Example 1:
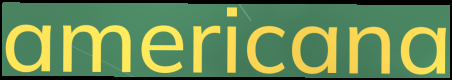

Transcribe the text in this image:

americana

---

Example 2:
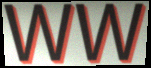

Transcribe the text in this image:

WW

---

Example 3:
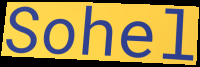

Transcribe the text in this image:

Sohel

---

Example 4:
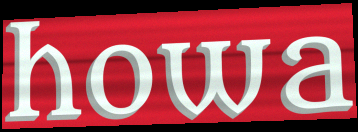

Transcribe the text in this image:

howa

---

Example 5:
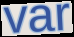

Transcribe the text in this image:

var